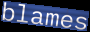
blames